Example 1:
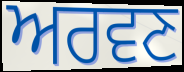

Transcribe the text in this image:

ਅਰਵਣ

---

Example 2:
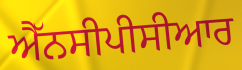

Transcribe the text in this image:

ਐੱਨਸੀਪੀਸੀਆਰ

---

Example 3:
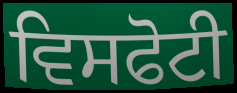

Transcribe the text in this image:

ਵਿਸਫੋਟੀ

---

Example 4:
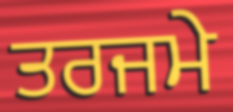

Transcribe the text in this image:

ਤਰਜਮੇ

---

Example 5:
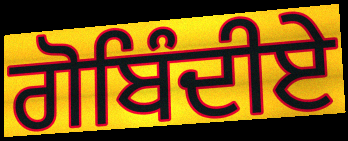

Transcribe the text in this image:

ਗੋਬਿੰਦੀਏ